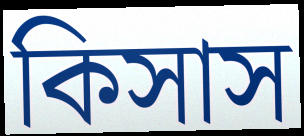
কিসাস